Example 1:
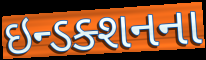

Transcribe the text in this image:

ઇન્ડક્શનના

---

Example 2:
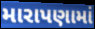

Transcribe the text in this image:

મારાપણામાં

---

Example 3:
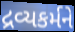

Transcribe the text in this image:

દ્રવ્યકર્મને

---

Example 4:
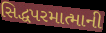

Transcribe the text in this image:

સિદ્ધપરમાત્માની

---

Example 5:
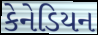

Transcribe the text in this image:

કેનેડિયન